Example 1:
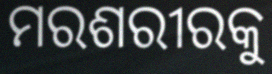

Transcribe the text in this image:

ମରଶରୀରକୁ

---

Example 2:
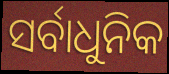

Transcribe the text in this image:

ସର୍ବାଧୁନିକ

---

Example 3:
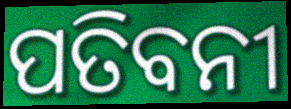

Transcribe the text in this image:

ପତିବନୀ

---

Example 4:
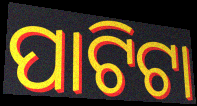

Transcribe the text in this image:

ପାଟିଟା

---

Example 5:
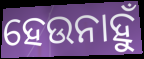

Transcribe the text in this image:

ହେଉନାହୁଁ